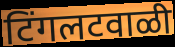
टिंगलटवाळी